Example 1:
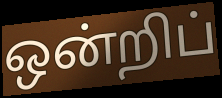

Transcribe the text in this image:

ஒன்றிப்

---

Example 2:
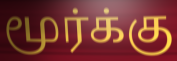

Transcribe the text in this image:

மூர்க்கு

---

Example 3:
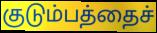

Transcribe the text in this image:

குடும்பத்தைச்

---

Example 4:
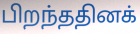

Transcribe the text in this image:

பிறந்ததினக்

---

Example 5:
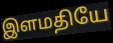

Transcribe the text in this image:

இளமதியே